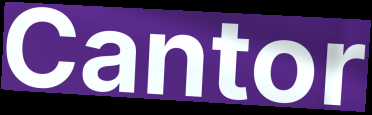
Cantor